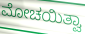
ಮೋಚಯಿತ್ವಾ